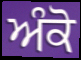
ਅੰਕੋ